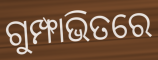
ଗୁମ୍ଫାଭିତରେ